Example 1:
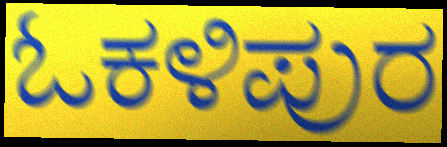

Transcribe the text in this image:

ಓಕಳಿಪುರ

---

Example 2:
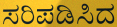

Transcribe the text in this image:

ಸರಿಪಡಿಸಿದ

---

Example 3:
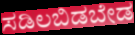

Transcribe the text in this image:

ಸಡಿಲಬಿಡಬೇಡ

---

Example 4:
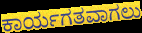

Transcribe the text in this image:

ಕಾರ್ಯಗತವಾಗಲು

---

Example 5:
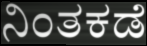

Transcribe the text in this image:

ನಿಂತಕಡೆ